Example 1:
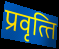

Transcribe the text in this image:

प्रवृत्‍ति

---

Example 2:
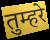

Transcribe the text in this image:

तुम्हरे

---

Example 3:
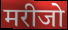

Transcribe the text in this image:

मरीजो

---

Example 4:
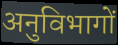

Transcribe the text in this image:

अनुविभागों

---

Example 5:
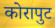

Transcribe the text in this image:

कोरापुट